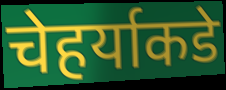
चेहर्याकडे